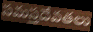
సమస్తదేవతలు